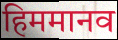
हिममानव